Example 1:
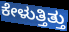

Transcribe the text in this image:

ಕೇಳುತ್ತಿತ್ತು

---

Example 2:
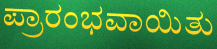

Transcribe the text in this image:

ಪ್ರಾರಂಭವಾಯಿತು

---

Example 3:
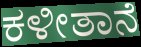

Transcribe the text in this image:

ಕಳೀತಾನೆ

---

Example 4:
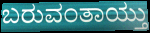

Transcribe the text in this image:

ಬರುವಂತಾಯ್ತು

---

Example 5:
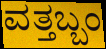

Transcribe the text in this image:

ವತ್ತಬ್ಬಂ